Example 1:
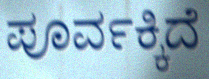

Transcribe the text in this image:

ಪೂರ್ವಕ್ಕಿದೆ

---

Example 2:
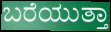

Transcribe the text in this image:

ಬರೆಯುತ್ತಾ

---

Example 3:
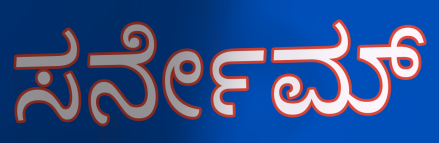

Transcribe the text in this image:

ಸರ್ನೇಮ್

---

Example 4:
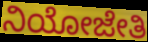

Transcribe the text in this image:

ನಿಯೋಜೇತಿ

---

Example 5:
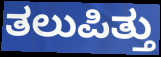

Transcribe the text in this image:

ತಲುಪಿತ್ತು